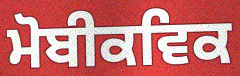
ਮੋਬੀਕਵਿਕ